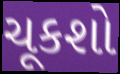
ચૂકશો